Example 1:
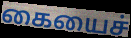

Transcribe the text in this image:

கையைச்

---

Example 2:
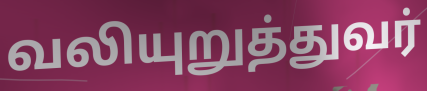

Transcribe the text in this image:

வலியுறுத்துவர்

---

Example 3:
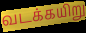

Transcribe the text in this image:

வடக்கயிறு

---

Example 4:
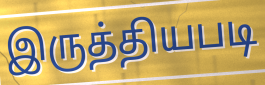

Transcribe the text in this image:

இருத்தியபடி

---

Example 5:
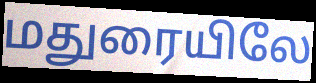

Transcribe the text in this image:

மதுரையிலே